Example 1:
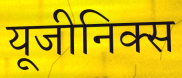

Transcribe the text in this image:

यूजीनिक्स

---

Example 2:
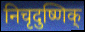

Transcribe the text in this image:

निचृदुष्णिक्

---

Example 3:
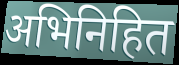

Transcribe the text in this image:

अभिनिहित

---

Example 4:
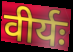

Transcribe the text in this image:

वीर्यः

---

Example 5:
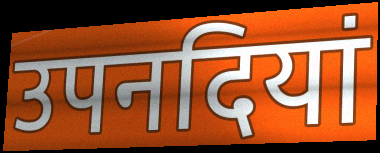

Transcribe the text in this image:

उपनदियां